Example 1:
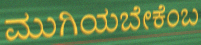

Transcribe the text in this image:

ಮುಗಿಯಬೇಕೆಂಬ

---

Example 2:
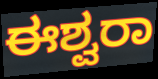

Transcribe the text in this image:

ಈಶ್ವರಾ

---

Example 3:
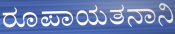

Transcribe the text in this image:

ರೂಪಾಯತನಾನಿ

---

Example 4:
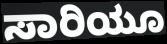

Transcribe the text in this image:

ಸಾರಿಯೂ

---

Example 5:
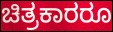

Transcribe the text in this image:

ಚಿತ್ರಕಾರರೂ